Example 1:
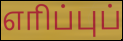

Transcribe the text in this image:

எரிப்புப்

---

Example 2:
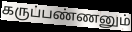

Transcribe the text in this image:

கருப்பண்ணனும்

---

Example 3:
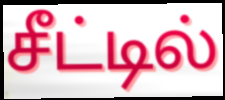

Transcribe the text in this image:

சீட்டில்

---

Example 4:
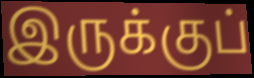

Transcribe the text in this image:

இருக்குப்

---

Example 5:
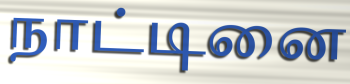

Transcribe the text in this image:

நாட்டினை